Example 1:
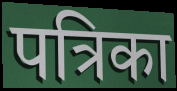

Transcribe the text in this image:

पत्रिका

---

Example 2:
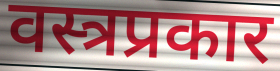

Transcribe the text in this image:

वस्त्रप्रकार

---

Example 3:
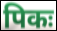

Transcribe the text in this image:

पिकः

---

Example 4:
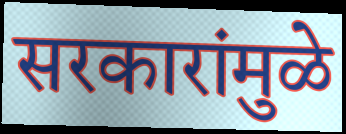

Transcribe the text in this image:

सरकारांमुळे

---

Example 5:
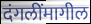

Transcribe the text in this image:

दंगलींमागील